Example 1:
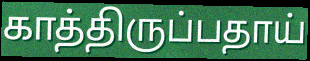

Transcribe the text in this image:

காத்திருப்பதாய்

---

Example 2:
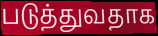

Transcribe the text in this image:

படுத்துவதாக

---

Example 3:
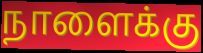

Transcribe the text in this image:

நாளைக்கு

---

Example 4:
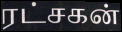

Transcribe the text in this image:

ரட்சகன்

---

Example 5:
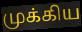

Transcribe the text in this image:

முக்கிய